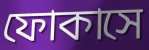
ফোকাসে